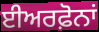
ਈਅਰਫ਼ੋਨਾਂ